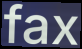
fax